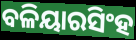
ବଳିୟାରସିଂହ